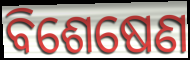
ବିଶେଷେଣ